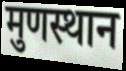
मुणस्थान